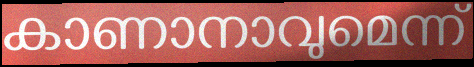
കാണാനാവുമെന്ന്